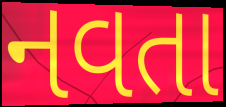
નવતા